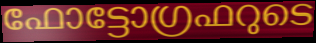
ഫോട്ടോഗ്രഫറുടെ